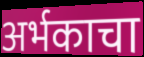
अर्भकाचा